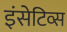
इंसेटिव्स